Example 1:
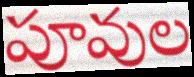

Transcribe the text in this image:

పూవుల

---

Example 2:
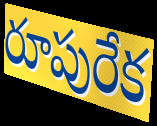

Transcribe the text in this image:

రూపురేక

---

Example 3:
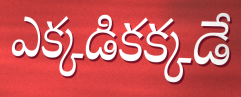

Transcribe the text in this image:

ఎక్కడికక్కడే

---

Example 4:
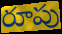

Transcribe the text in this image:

రూపు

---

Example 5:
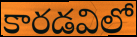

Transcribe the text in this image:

కారడవిలో